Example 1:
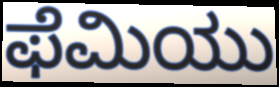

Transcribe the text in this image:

ಫೆಮಿಯು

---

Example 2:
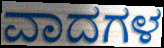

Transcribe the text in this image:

ವಾದಗಳ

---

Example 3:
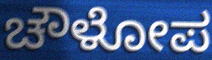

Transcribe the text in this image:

ಚೌಳೋಪ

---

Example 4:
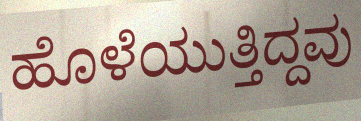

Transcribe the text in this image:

ಹೊಳೆಯುತ್ತಿದ್ದವು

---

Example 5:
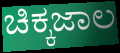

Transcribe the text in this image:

ಚಿಕ್ಕಜಾಲ